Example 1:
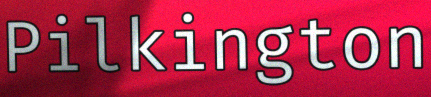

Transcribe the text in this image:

Pilkington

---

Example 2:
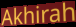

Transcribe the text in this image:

Akhirah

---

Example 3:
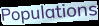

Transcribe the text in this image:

Populations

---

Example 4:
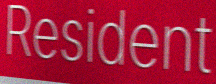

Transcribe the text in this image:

Resident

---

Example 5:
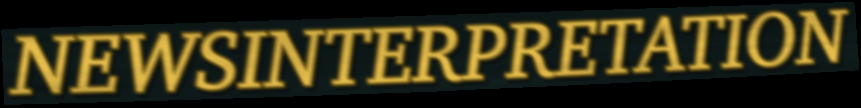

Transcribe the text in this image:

NEWSINTERPRETATION